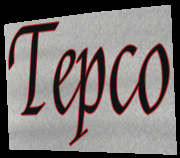
Tepco